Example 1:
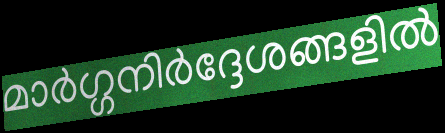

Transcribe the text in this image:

മാർഗ്ഗനിർദ്ദേശങ്ങളിൽ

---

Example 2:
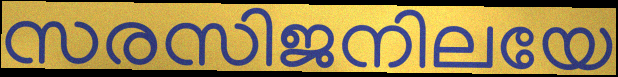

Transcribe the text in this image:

സരസിജനിലയേ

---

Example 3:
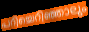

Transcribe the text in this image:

പറിച്ചെറിഞ്ഞാലും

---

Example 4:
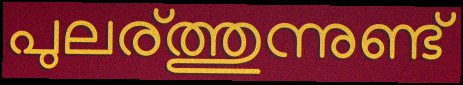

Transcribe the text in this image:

പുലര്ത്തുന്നുണ്ട്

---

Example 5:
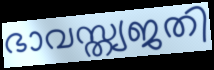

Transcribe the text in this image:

ഭാവസ്ത്യജതി